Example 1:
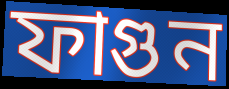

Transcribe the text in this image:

ফাগুন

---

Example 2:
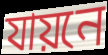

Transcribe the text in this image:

যায়নে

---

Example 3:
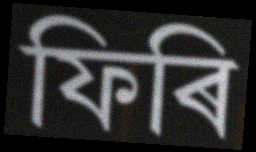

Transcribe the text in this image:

ফিৰি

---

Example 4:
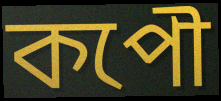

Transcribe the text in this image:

কপৌ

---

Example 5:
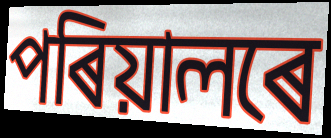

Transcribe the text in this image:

পৰিয়ালৰে